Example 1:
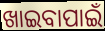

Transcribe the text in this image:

ଖାଇବାପାଇଁ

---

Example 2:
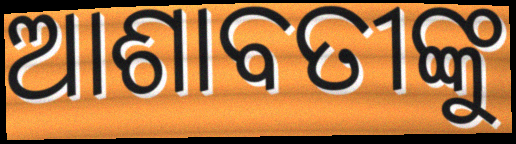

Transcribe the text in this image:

ଆଶାବତୀଙ୍କୁ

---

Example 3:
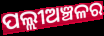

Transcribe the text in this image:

ପଲ୍ଲୀଅଞ୍ଚଳର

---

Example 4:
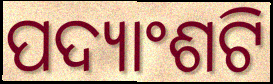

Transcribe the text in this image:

ପଦ୍ୟାଂଶଟି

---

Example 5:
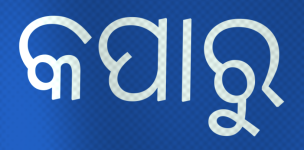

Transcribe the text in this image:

କପାରୁ